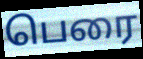
பெரை